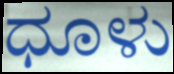
ಧೂಳು